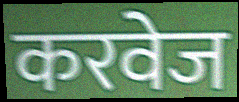
करवेज